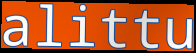
alittu